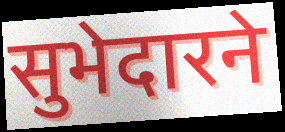
सुभेदारने